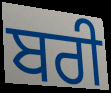
ਬਰੀ